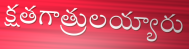
క్షతగాత్రులయ్యారు